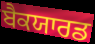
ਬੈਕਯਾਰਡ